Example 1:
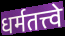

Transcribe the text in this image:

धर्मतत्त्वे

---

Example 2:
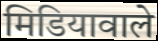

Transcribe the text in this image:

मिडियावाले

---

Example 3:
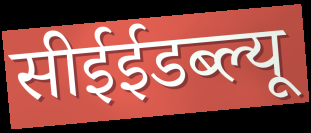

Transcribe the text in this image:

सीईईडब्ल्यू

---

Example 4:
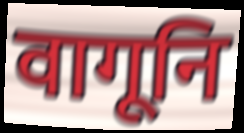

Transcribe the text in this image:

वागूनि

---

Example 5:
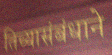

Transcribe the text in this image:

तिच्यासंबंधाने